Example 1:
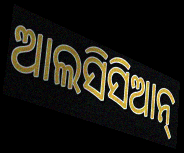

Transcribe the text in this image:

ଆଲସିସିଆନ୍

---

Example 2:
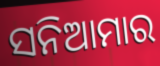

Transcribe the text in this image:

ସନିଆମାର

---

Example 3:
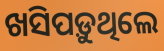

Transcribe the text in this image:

ଖସିପଡ଼ୁଥିଲେ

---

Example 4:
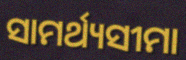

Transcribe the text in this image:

ସାମର୍ଥ୍ୟସୀମା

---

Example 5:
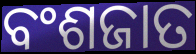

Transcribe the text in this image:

ବଂଶଜାତ